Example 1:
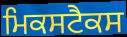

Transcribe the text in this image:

ਮਿਕਸਟੈਕਸ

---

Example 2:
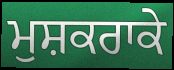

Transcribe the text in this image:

ਮੁਸ਼ਕਰਾਕੇ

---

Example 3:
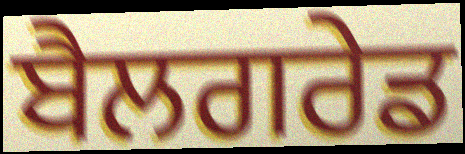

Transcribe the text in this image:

ਬੈਲਗਰੇਡ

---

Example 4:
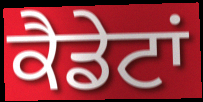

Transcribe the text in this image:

ਕੈਡੇਟਾਂ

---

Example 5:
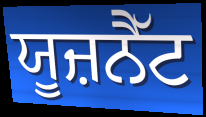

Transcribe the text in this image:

ਯੂਜ਼ਨੈੱਟ